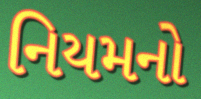
નિયમનો